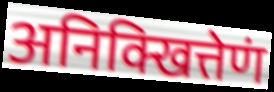
अनिक्खित्तेणं